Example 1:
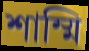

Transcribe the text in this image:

শাম্মি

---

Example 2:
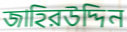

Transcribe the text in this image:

জাহিরউদ্দিন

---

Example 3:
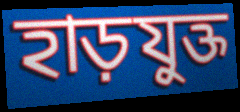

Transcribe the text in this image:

হাড়যুক্ত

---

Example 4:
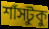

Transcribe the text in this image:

শাঁসটুকু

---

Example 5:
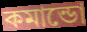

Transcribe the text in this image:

কমান্ডো